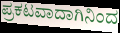
ಪ್ರಕಟವಾದಾಗಿನಿಂದ